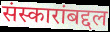
संस्कारांबद्दल